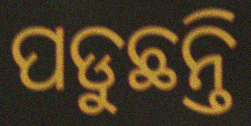
ପଡୁଛନ୍ତି